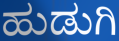
ಹುಡುಗಿ